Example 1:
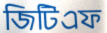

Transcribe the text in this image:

জিটিএফ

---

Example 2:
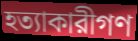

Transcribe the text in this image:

হত্যাকারীগণ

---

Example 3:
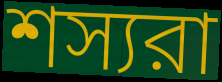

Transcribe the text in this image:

শস্যরা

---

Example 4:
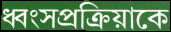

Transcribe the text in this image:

ধ্বংসপ্রক্রিয়াকে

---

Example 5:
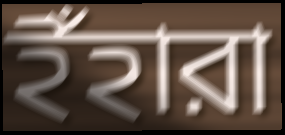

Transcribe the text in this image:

ইঁহারা